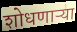
शोधणाऱ्या